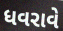
ધવરાવે